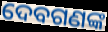
ଦେବଗଣଙ୍କ